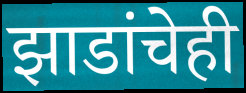
झाडांचेही